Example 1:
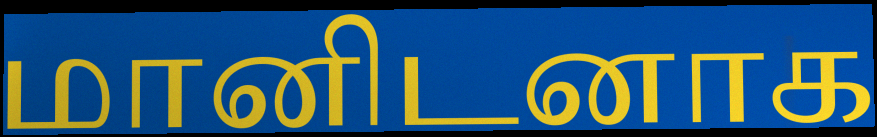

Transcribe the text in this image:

மானிடனாக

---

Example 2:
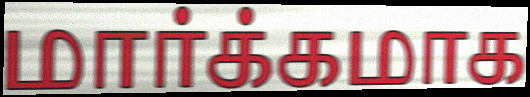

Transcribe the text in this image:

மார்க்கமாக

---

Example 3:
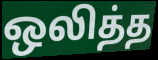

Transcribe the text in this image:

ஒலித்த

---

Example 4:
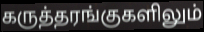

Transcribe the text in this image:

கருத்தரங்குகளிலும்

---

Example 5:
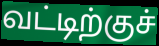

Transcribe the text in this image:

வட்டிற்குச்